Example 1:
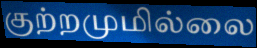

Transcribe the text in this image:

குற்றமுமில்லை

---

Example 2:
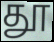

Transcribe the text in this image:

தூ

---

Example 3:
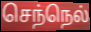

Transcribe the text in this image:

செந்நெல்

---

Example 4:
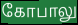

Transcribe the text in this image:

கோபாலு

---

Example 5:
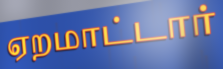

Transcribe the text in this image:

ஏறமாட்டார்